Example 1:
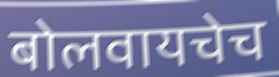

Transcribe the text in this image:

बोलवायचेच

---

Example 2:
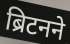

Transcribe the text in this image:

ब्रिटनने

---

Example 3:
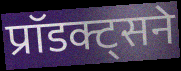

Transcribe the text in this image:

प्रॉडक्ट्सने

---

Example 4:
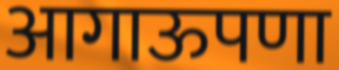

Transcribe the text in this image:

आगाऊपणा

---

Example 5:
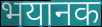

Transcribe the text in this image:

भयानक